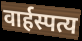
वार्हस्पत्य